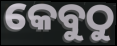
କେବୁଠୁ